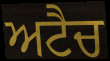
ਅਟੈਚ